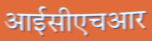
आईसीएचआर